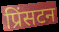
प्रिंसटन